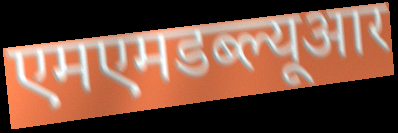
एमएमडब्ल्यूआर